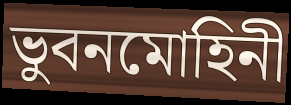
ভুবনমোহিনী